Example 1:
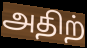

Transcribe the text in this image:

அதிற்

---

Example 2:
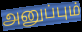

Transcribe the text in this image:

அனுப்பும்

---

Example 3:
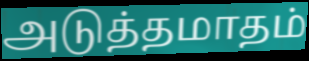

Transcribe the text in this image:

அடுத்தமாதம்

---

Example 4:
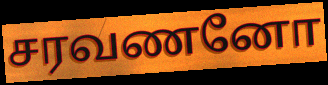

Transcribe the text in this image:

சரவணனோ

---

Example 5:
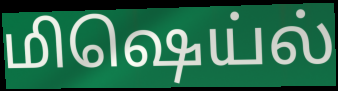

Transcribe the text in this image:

மிஷெய்ல்